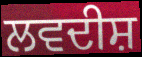
ਲਵਦੀਸ਼